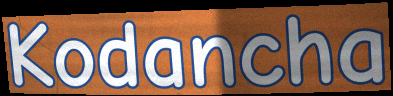
Kodancha